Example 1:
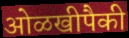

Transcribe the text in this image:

ओळखीपैकी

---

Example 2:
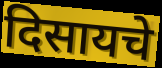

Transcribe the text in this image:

दिसायचे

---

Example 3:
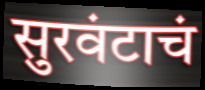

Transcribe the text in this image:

सुरवंटाचं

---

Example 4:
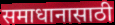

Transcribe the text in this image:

समाधानासाठी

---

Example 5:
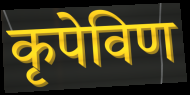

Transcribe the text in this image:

कृपेविण